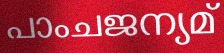
പാംചജന്യമ്